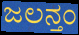
ಜಲನ್ತಂ